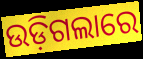
ଉଡ଼ିଗଲାରେ